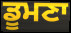
ਡੂਮਣਾ